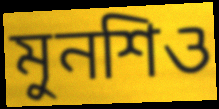
মুনশিও